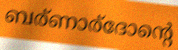
ബര്ണാര്ദോന്റെ